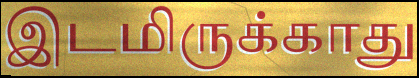
இடமிருக்காது